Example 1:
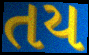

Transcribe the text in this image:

તય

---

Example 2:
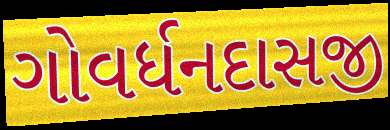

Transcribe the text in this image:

ગોવર્ધનદાસજી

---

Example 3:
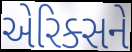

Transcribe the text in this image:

એરિક્સને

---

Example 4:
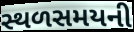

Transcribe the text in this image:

સ્થળસમયની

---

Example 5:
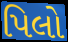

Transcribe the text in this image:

પિલો